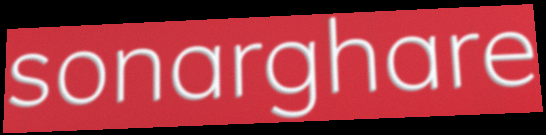
sonarghare